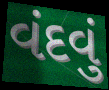
વંદવું